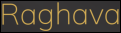
Raghava